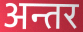
अन्तर